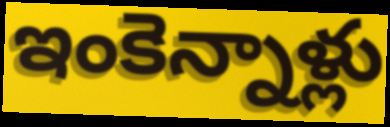
ఇంకెన్నాళ్లు